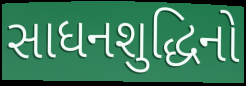
સાધનશુદ્ધિનો